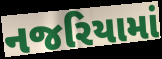
નજરિયામાં